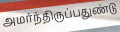
அமர்ந்திருப்பதுண்டு